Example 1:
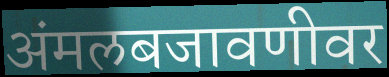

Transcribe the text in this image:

अंमलबजावणीवर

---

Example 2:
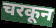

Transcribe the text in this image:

चरकून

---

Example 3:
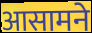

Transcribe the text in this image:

आसामने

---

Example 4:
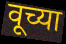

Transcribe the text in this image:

वूच्या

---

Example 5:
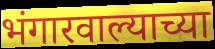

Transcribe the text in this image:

भंगारवाल्याच्या